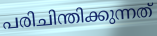
പരിചിന്തിക്കുന്നത്